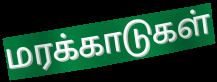
மரக்காடுகள்